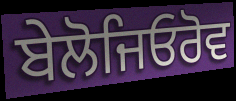
ਬੇਲੋਜਿਓਰੋਵ